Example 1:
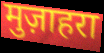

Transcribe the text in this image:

मुज़ाहरा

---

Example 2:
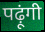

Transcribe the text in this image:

पढ़ूंगी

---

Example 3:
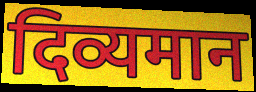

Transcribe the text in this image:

दिव्यमान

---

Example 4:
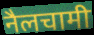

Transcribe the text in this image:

नैलचामी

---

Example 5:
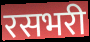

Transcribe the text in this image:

रसभरी